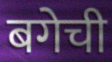
बगेची